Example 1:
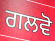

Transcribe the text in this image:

ਗਲਵੋ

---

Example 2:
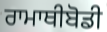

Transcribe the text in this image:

ਰਾਮਾਥੀਬੋਡੀ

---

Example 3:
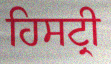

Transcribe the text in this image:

ਹਿਸਟ੍ਰੀ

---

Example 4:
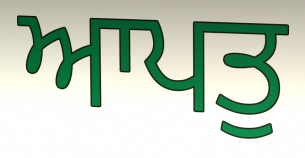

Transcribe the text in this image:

ਆਪਤੁ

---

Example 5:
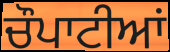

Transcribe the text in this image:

ਚੌਪਾਟੀਆਂ